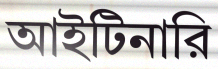
আইটিনারি